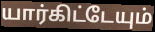
யார்கிட்டேயும்